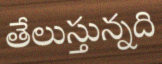
తేలుస్తున్నది